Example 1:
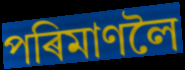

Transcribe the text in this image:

পৰিমাণলৈ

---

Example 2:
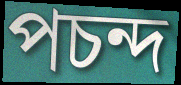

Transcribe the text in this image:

পচন্দ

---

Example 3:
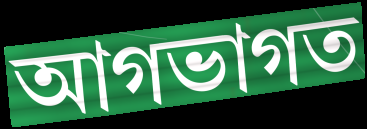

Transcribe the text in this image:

আগভাগত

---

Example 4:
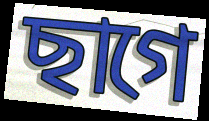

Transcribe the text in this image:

ছাগে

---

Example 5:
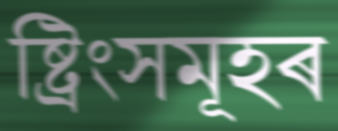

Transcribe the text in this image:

ষ্ট্ৰিংসমূহৰ